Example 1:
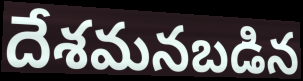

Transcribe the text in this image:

దేశమనబడిన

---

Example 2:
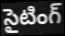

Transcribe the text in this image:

సైటింగ్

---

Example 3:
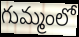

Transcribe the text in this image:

గుమ్మంలో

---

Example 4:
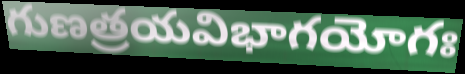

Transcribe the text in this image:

గుణత్రయవిభాగయోగః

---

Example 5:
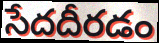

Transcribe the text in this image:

సేదదీరడం